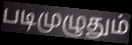
படிமுழுதும்